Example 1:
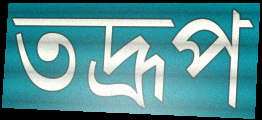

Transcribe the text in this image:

তদ্রূপ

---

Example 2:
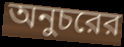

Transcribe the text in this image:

অনুচরের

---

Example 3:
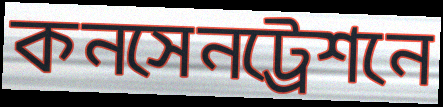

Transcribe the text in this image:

কনসেনট্রেশনে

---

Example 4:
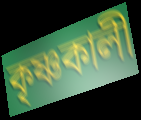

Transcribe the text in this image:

কৃষ্ণকালী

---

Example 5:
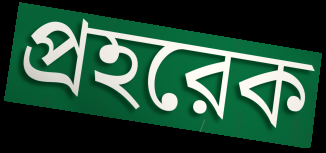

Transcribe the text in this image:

প্রহরেক